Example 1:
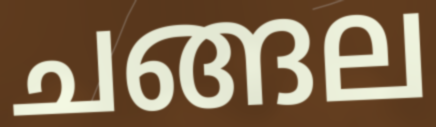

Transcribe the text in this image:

ചങ്ങല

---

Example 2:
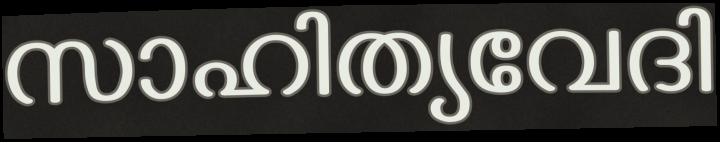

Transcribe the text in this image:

സാഹിത്യവേദി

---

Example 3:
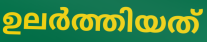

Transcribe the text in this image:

ഉലർത്തിയത്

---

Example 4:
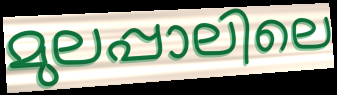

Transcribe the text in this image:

മുലപ്പാലിലെ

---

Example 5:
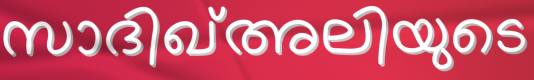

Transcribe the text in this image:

സാദിഖ്അലിയുടെ